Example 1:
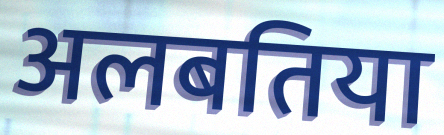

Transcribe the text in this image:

अलबतिया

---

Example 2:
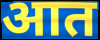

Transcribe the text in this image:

आत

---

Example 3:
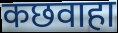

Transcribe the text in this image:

कछवाहा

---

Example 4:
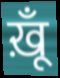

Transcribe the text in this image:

ख़ूँ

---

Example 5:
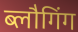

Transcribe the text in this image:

ब्लौगिंग